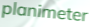
planimeter